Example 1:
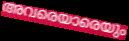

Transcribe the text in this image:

അവരെയാരെയും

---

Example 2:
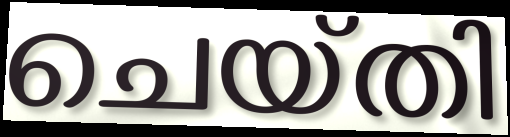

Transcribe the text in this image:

ചെയ്‌തി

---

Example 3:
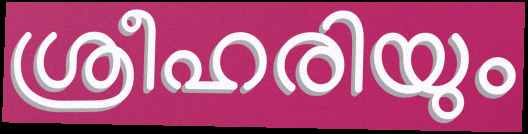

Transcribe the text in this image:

ശ്രീഹരിയും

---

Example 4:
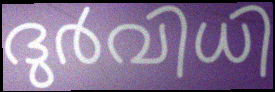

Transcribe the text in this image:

ദുർവിധി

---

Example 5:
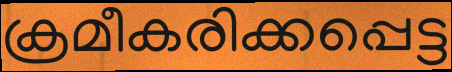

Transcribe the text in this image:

ക്രമീകരിക്കപ്പെട്ട